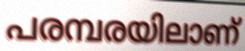
പരമ്പരയിലാണ്